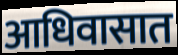
आधिवासात